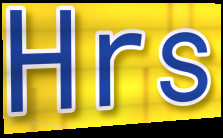
Hrs